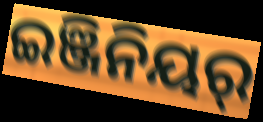
ଇଞ୍ଜିନିୟର୍